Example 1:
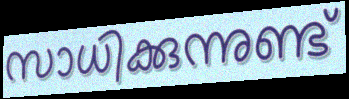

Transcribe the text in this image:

സാധിക്കുന്നുണ്ട്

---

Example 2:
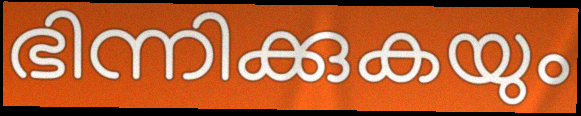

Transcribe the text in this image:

ഭിന്നിക്കുകയും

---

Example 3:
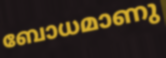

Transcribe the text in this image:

ബോധമാണു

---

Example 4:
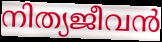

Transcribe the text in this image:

നിത്യജീവൻ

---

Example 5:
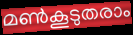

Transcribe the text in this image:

മൺകൂടുതരാം